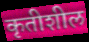
कृतीशील